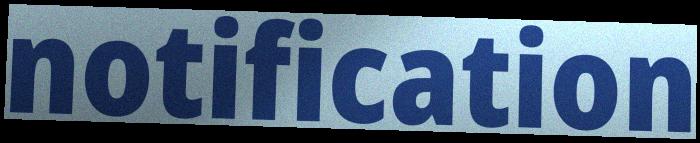
notification